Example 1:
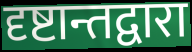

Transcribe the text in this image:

दृष्टान्तद्वारा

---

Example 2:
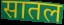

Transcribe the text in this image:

सातल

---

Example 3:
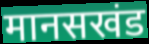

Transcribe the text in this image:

मानसखंड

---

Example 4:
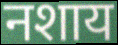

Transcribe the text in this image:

नशाय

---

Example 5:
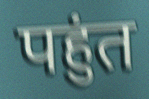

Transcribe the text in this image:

पहुंत